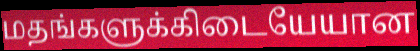
மதங்களுக்கிடையேயான